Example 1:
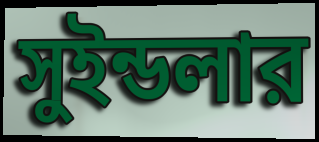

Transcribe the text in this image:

সুইন্ডলার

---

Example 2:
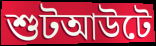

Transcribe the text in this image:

শুটআউটে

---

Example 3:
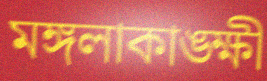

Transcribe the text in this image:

মঙ্গলাকাঙ্ক্ষী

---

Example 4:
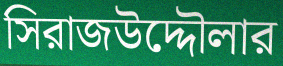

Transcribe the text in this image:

সিরাজউদ্দৌলার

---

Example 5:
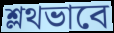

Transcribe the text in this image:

শ্লথভাবে